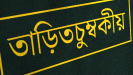
তাড়িতচুম্বকীয়